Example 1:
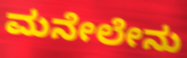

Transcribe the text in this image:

ಮನೇಲೇನು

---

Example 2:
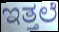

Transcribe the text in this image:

ಇತ್ತಲೆ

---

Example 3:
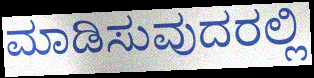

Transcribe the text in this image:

ಮಾಡಿಸುವುದರಲ್ಲಿ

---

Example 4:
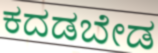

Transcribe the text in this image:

ಕದಡಬೇಡ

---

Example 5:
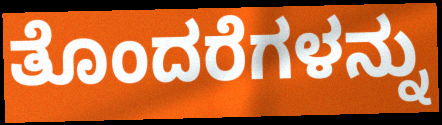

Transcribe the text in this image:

ತೊಂದರೆಗಳನ್ನು